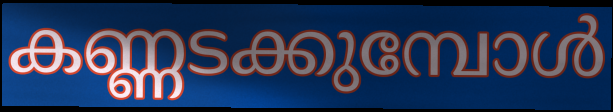
കണ്ണടക്കുമ്പോൾ